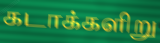
கடாக்களிறு